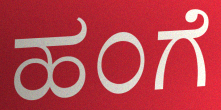
ಹಂಗೆ